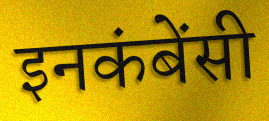
इनकंबेंसी